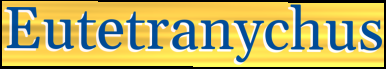
Eutetranychus